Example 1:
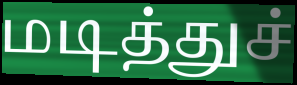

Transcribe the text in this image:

மடித்துச்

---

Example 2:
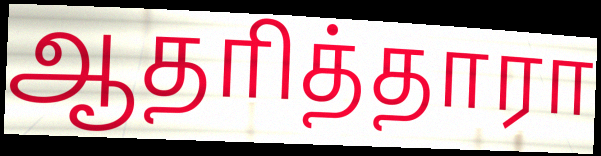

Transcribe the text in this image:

ஆதரித்தாரா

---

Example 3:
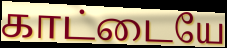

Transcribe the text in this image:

காட்டையே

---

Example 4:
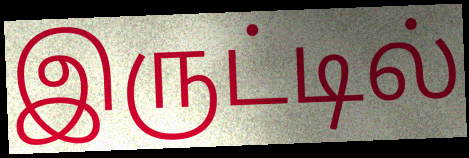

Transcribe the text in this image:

இருட்டில்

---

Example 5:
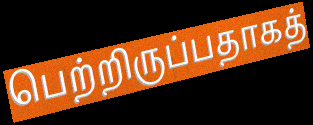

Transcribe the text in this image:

பெற்றிருப்பதாகத்